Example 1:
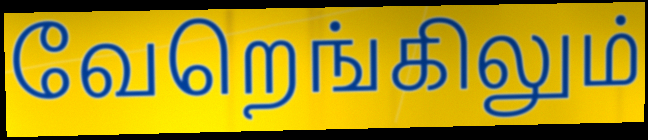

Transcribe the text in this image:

வேறெங்கிலும்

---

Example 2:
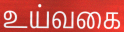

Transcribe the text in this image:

உய்வகை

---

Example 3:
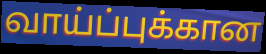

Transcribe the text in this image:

வாய்ப்புக்கான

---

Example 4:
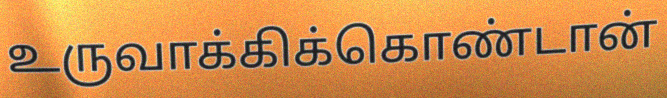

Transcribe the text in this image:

உருவாக்கிக்கொண்டான்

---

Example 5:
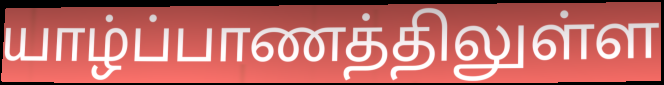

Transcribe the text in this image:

யாழ்ப்பாணத்திலுள்ள